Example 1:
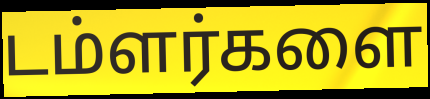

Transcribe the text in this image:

டம்ளர்களை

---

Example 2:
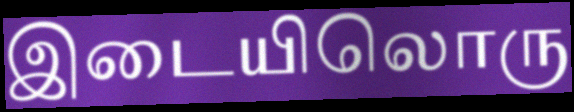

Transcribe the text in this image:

இடையிலொரு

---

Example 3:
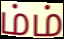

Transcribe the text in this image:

ம்ம்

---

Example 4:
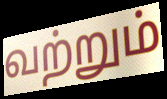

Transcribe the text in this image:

வற்றும்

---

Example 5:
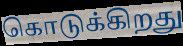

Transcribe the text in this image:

கொடுக்கிறது